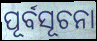
ପୂର୍ବସୂଚନା